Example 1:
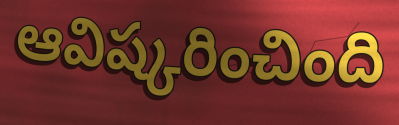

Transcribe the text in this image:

ఆవిష్కరించింది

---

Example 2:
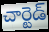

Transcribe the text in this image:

చార్టెడ్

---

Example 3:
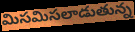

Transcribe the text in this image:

మిసమిసలాడుతున్న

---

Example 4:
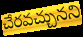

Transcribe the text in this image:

చేరవచ్చునని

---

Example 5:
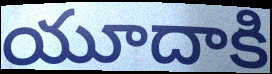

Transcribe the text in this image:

యూదాకి